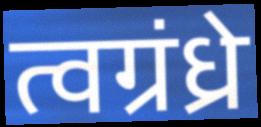
त्वग्रंध्रे